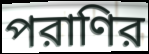
পরাণির